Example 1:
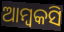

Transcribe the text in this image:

ଆମ୍ବକସି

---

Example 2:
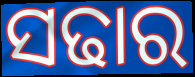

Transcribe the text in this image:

ସଢାର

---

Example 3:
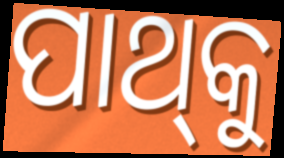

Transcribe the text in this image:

ପାଥ୍‌କୁ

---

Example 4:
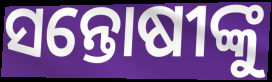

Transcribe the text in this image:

ସନ୍ତୋଷୀଙ୍କୁ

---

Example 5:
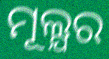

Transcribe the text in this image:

ମୂଲ୍ଯର